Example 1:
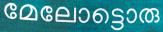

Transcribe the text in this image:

മേലോട്ടൊരു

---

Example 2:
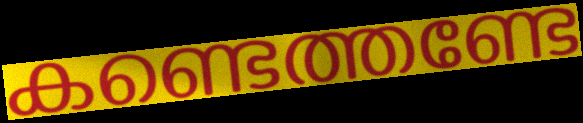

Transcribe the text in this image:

കണ്ടെത്തണ്ടേ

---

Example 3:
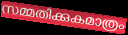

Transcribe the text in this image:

സമ്മതിക്കുകമാത്രം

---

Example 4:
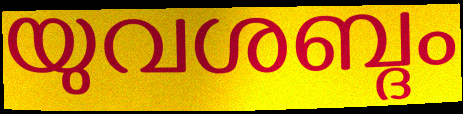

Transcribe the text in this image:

യുവശബ്ദം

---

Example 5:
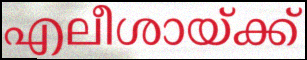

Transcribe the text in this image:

എലീശായ്ക്ക്